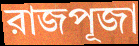
রাজপূজা